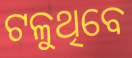
ଟଳୁଥିବେ